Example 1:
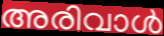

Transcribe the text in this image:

അരിവാൾ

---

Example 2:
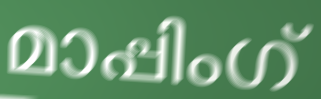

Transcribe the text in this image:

മാപ്പിംഗ്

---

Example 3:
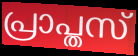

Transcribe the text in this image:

പ്രാപ്തസ്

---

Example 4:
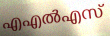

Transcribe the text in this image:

എഎൽഎസ്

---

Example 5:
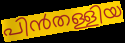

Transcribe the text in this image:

പിൻതള്ളിയ